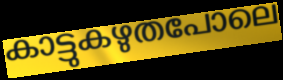
കാട്ടുകഴുതപോലെ